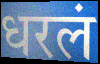
धरलं